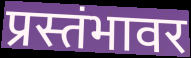
प्रस्तंभावर